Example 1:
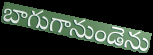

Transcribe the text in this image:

బాగుగానుండెను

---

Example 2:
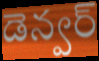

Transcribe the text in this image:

డెన్వర్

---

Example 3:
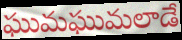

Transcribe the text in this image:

ఘుమఘుమలాడే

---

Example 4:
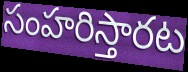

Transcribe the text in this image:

సంహరిస్తారట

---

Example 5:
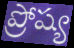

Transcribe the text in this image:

ప్రోష్య